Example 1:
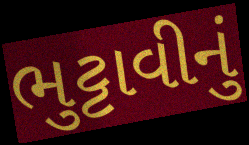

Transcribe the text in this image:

ભુટ્ટાવીનું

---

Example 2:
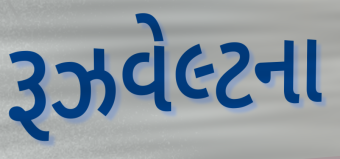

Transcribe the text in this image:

રૂઝવેલ્ટના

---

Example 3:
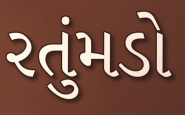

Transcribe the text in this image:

રતુંમડો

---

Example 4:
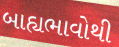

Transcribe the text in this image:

બાહ્યભાવોથી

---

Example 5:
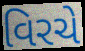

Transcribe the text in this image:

વિરચે